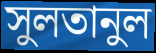
সুলতানুল